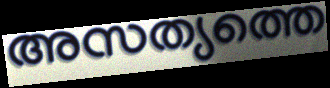
അസത്യത്തെ